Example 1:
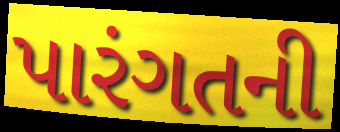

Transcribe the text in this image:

પારંગતની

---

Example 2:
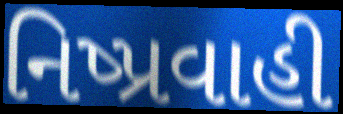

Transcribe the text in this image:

નિષ્પ્રવાહી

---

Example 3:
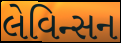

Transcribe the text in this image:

લેવિન્સન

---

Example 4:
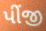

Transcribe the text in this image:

પીંજી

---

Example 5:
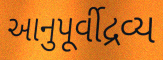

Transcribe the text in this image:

આનુપૂર્વીદ્રવ્ય